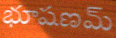
భూషణమ్